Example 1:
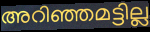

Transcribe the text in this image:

അറിഞ്ഞമട്ടില്ല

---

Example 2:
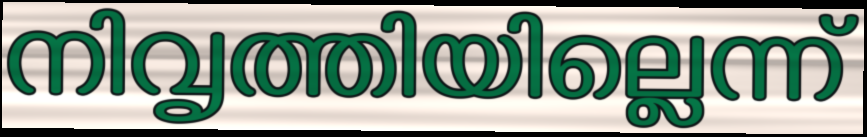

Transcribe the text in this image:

നിവൃത്തിയില്ലെന്ന്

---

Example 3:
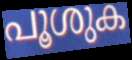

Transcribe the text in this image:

പൂശുക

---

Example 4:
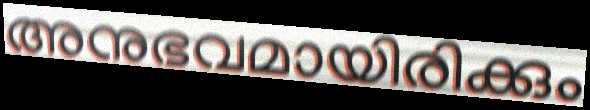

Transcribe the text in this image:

അനുഭവമായിരിക്കും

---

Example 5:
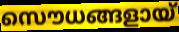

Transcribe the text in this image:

സൌധങ്ങളായ്